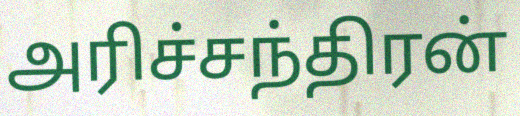
அரிச்சந்திரன்